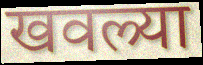
खवल्या